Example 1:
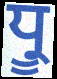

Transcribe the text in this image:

ਧ੍ਰੂ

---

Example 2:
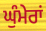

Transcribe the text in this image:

ਘੁੰਮੇਰਾਂ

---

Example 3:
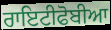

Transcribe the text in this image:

ਰਾਇਟੀਫੋਬੀਆ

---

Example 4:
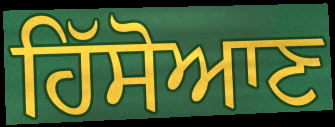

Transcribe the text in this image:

ਹਿੱਸੋਆਣ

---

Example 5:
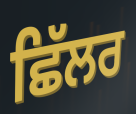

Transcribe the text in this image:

ਛਿੱਲਰ